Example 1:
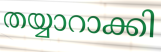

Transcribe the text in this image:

തയ്യാറാക്കി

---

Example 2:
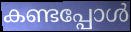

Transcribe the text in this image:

കണ്ടപ്പോൾ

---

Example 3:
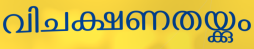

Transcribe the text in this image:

വിചക്ഷണതയ്ക്കും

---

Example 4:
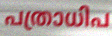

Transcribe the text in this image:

പത്രാധിപ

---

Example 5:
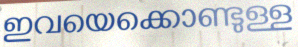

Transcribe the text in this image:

ഇവയെക്കൊണ്ടുള്ള